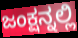
ಜಂಕ್ಷನ್ನಲ್ಲಿ